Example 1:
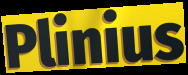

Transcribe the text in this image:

Plinius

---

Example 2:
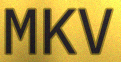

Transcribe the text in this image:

MKV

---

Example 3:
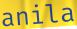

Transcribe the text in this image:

anila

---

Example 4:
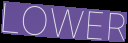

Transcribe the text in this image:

LOWER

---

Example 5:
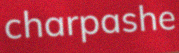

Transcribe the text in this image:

charpashe